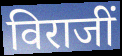
विराजीं